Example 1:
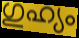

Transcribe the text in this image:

ഗുഹ്യം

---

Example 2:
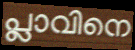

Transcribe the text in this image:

പ്ലാവിനെ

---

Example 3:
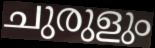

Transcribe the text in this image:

ചുരുളും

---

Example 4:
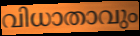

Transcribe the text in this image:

വിധാതാവും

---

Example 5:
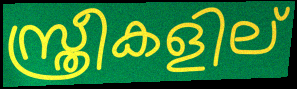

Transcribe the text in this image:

സ്ത്രീകളില്